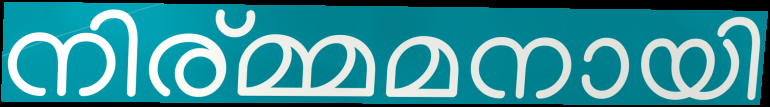
നിര്മ്മമനായി